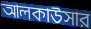
আলকাউসার